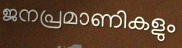
ജനപ്രമാണികളും